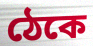
ঠেকে